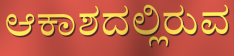
ಆಕಾಶದಲ್ಲಿರುವ